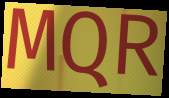
MQR